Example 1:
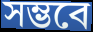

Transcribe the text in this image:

সম্ভবে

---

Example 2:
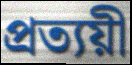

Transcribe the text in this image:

প্রত্যয়ী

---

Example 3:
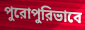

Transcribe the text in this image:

পুরোপুরিভাবে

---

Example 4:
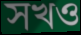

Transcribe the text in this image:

সখও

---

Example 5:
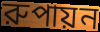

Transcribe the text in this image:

রুপায়ন